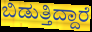
ಬಿಡುತ್ತಿದ್ದಾರೆ